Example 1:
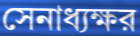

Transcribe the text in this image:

সেনাধ্যক্ষর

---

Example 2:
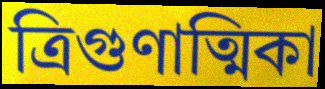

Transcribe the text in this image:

ত্রিগুণাত্মিকা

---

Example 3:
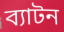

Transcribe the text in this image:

ব্যাটন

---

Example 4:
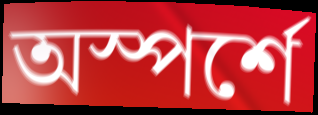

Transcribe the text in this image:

অস্পর্শে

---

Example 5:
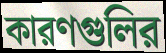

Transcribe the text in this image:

কারণগুলির